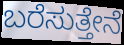
ಬರೆಸುತ್ತೇನೆ